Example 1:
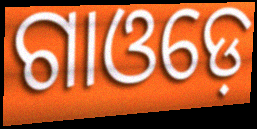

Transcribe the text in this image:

ଗାଓଡ଼େ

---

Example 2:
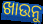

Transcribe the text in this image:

ଖାଉନୁ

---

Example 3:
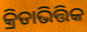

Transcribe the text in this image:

କ୍ରିଡାଭିତ୍ତିକ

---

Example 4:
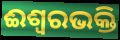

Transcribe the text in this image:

ଈଶ୍ୱରଭକ୍ତି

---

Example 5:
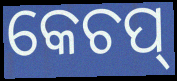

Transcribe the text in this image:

କେଚପ୍